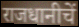
राजधानीचें